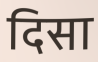
दिसा